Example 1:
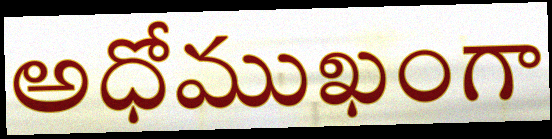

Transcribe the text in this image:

అధోముఖంగా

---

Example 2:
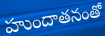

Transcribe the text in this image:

హుందాతనంతో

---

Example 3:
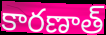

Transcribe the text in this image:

కారణాత్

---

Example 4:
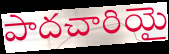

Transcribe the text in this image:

పాదచారియై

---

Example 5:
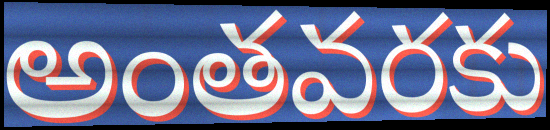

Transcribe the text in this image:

అంతవరకు